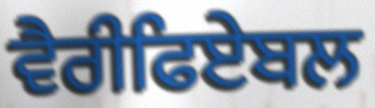
ਵੈਰੀਫਿਏਬਲ